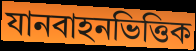
যানবাহনভিত্তিক